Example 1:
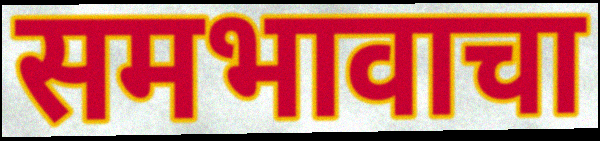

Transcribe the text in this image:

समभावाचा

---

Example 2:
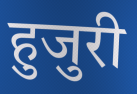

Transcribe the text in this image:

हुजुरी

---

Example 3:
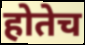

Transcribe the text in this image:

होतेच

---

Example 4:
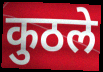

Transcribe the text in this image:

कुठले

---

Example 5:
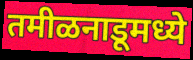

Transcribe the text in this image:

तमीळनाडूमध्ये